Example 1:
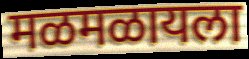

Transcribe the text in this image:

मळमळायला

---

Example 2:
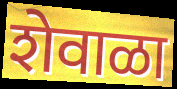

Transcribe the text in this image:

शेवाळा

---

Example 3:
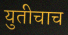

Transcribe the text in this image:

युतीचाच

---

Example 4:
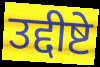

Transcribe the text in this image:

उद्दीष्टे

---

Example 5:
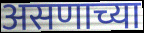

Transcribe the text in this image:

असणाच्या